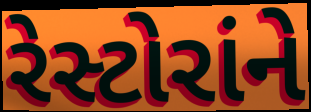
રેસ્ટોરાંને